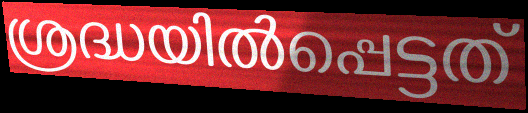
ശ്രദ്ധയിൽപ്പെട്ടത്